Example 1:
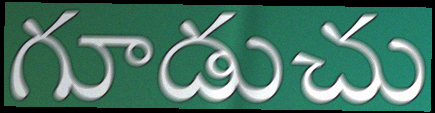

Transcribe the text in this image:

గూడుచు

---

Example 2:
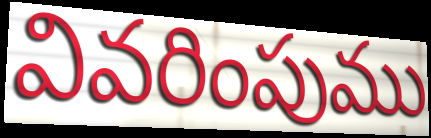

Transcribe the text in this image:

వివరింపుము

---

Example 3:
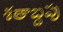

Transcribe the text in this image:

శతాబ్దపు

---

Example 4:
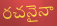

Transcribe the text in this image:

రచనైనా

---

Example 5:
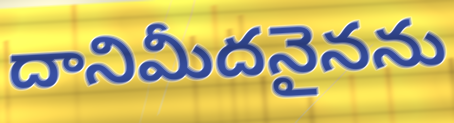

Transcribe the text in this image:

దానిమీదనైనను